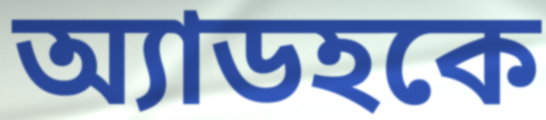
অ্যাডহকে